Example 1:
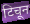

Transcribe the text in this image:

टिचून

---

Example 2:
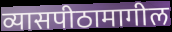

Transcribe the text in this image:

व्यासपीठामागील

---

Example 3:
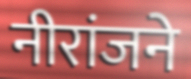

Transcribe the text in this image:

नीरांजने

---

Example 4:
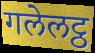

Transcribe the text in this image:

गलेलट्ठ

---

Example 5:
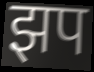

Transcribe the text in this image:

झप